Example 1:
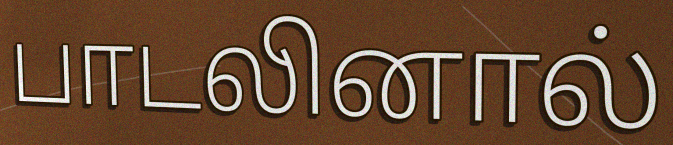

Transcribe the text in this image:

பாடலினால்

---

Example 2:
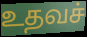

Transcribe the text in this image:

உதவச்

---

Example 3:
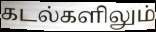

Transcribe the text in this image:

கடல்களிலும்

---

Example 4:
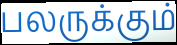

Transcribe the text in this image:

பலருக்கும்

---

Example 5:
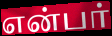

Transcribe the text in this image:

என்பர்